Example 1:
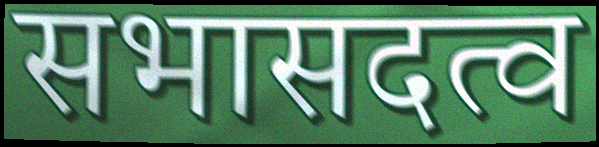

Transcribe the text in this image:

सभासदत्व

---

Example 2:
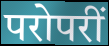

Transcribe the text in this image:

परोपरीं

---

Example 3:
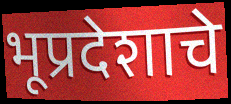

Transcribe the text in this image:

भूप्रदेशाचे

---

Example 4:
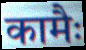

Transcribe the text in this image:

कामैः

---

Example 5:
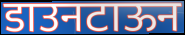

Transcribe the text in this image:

डाउनटाऊन